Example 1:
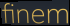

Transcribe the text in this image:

finem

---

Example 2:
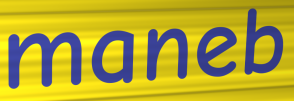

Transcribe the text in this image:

maneb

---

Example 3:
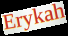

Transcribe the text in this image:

Erykah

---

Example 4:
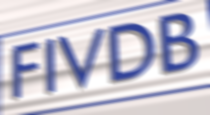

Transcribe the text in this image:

FIVDB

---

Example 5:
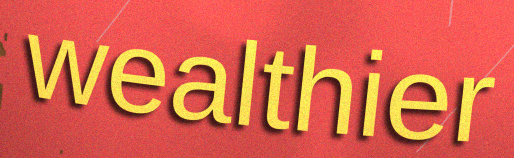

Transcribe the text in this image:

wealthier